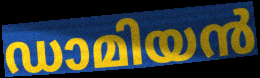
ഡാമിയൻ